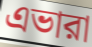
এভারা